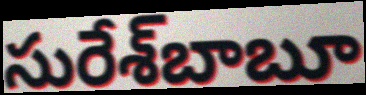
సురేశ్‌బాబూ